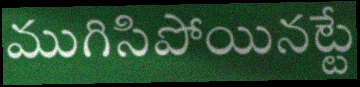
ముగిసిపోయినట్టే